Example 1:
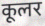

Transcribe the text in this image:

कूलर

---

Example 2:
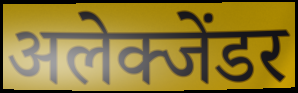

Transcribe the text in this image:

अलेक्जेंडर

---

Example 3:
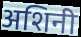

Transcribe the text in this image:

अशिनी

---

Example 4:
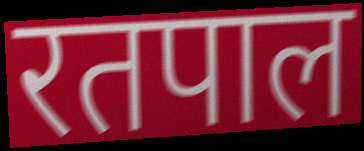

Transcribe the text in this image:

रतपाल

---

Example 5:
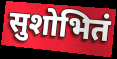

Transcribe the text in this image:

सुशोभितं